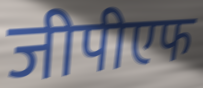
जीपीएफ